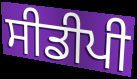
ਸੀਡੀਪੀ